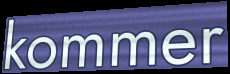
kommer